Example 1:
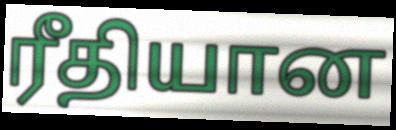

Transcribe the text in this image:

ரீதியான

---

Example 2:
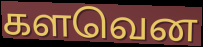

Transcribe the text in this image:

களவென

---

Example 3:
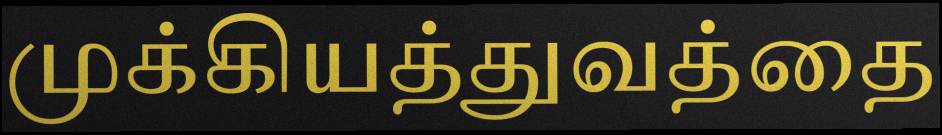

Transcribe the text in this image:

முக்கியத்துவத்தை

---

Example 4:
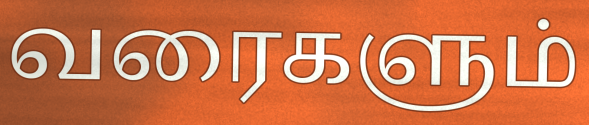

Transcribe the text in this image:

வரைகளும்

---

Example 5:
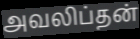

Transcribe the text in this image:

அவலிப்தன்